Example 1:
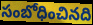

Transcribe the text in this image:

సంబోధించినది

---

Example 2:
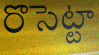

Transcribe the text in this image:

రొసెట్టా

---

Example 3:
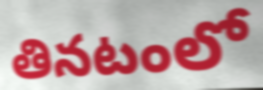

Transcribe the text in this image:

తినటంలో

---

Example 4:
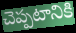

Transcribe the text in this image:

చెప్పటానికి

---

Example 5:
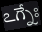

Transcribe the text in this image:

ఽగ్నేః